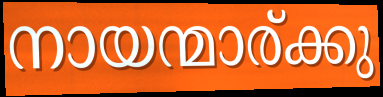
നായന്മാര്ക്കു